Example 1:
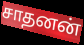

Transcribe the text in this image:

சாதனன்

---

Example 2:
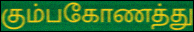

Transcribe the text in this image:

கும்பகோணத்து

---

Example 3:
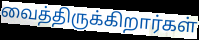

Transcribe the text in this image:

வைத்திருக்கிறார்கள்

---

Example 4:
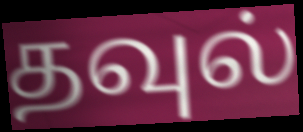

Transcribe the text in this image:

தவுல்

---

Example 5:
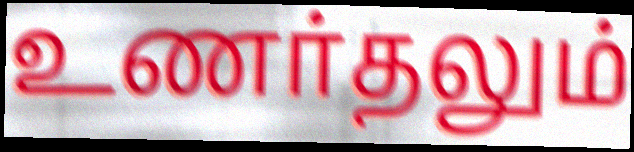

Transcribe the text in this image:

உணர்தலும்